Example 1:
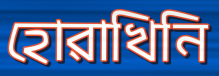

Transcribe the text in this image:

হোৱাখিনি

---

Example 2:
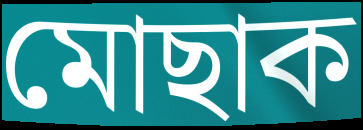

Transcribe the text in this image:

মোছাক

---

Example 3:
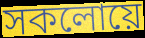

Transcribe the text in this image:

সকলোয়ে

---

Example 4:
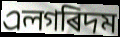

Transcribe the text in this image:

এলগৰিদম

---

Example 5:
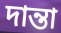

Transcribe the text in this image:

দান্তা